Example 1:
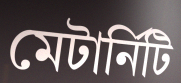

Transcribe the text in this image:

মেটার্নিটি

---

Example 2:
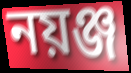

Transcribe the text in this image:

নয়ঞ্জ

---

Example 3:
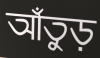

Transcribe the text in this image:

আঁতুড়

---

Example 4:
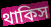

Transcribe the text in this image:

থাকিস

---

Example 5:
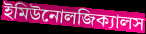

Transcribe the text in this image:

ইমিউনোলজিক্যালস